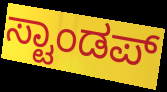
ಸ್ಟಾಂಡಪ್